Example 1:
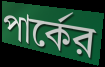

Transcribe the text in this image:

পার্কের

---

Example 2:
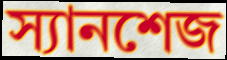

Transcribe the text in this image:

স্যানশেজ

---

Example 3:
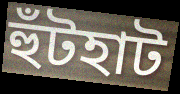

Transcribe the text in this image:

হুঁটহাট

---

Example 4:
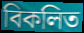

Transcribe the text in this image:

বিকলিত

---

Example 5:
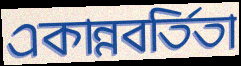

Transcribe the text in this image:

একান্নবর্তিতা